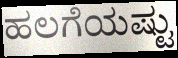
ಹಲಗೆಯಷ್ಟು